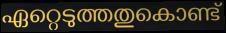
ഏറ്റെടുത്തതുകൊണ്ട്